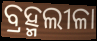
ବ୍ରହ୍ମଲୀଳା